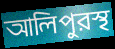
আলিপুরস্থ